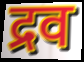
द्रव